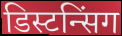
डिस्टन्सिंग